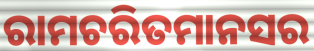
ରାମଚରିତମାନସର